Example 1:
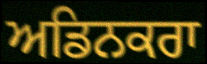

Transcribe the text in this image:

ਅਡਿਨਕਰਾ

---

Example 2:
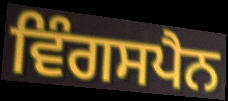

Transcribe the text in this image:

ਵਿੰਗਸਪੈਨ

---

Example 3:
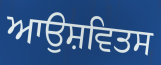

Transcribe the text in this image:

ਆਉਸ਼ਵਿਤਸ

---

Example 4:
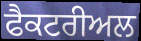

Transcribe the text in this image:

ਫੈਕਟਰੀਅਲ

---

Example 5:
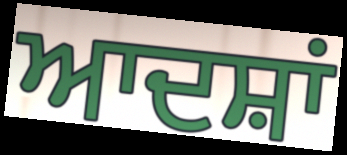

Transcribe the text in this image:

ਆਦਸ਼ਾਂ